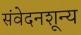
संवेदनशून्य